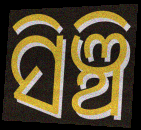
ସିଞ୍ଚି